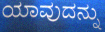
ಯಾವುದನ್ನು